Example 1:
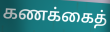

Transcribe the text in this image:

கணக்கைத்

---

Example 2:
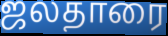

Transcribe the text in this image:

ஜலதாரை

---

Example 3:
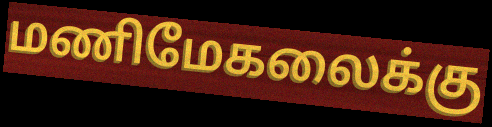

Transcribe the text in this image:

மணிமேகலைக்கு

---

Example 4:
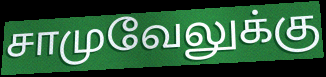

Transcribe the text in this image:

சாமுவேலுக்கு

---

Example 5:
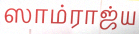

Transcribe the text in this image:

ஸாம்ராஜ்ய